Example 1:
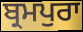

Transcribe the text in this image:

ਬ੍ਰਮਪੁਰਾ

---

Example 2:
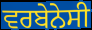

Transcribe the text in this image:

ਵਰਬੇਨੇਸੀ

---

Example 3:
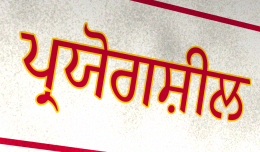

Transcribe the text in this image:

ਪ੍ਰਯੋਗਸ਼ੀਲ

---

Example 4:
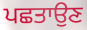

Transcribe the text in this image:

ਪਛਤਾਉਣ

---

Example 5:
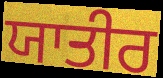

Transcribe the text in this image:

ਯਾਤੀਰ